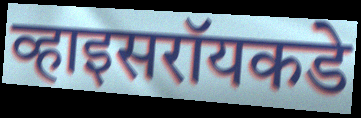
व्हाइसरॉयकडे